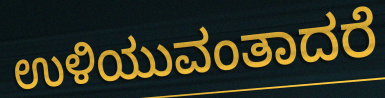
ಉಳಿಯುವಂತಾದರೆ